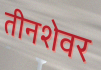
तीनशेवर